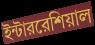
ইন্টাররেশিয়াল